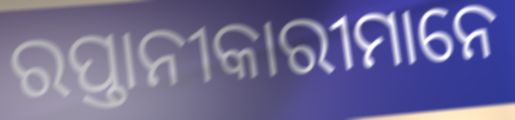
ରପ୍ତାନୀକାରୀମାନେ